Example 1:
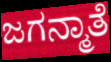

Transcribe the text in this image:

ಜಗನ್ಮಾತೆ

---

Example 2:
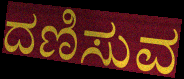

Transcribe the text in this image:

ದಣಿಸುವ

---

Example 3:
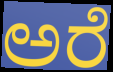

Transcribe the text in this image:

ಅರೆ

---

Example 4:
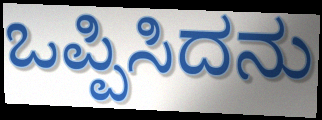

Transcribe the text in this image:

ಒಪ್ಪಿಸಿದನು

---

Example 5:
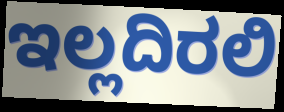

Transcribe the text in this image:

ಇಲ್ಲದಿರಲಿ